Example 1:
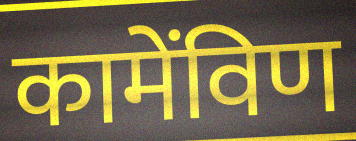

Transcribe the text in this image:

कामेंविण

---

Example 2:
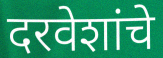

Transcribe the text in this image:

दरवेशांचे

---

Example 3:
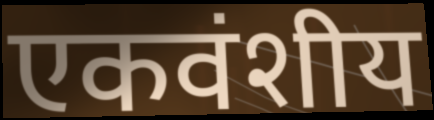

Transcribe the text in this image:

एकवंशीय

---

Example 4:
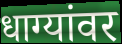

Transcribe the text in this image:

धाग्यांवर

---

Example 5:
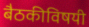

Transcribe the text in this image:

बैठकीविषयी